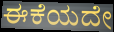
ಈಕೆಯದೇ